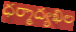
ధర్మాద్యఖిల